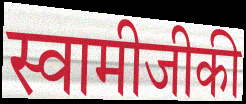
स्वामीजीकी